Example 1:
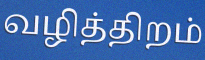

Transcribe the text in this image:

வழித்திறம்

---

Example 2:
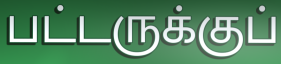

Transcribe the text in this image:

பட்டருக்குப்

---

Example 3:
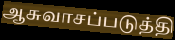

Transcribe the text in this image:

ஆசுவாசப்படுத்தி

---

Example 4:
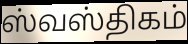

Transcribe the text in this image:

ஸ்வஸ்திகம்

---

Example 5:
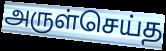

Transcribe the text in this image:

அருள்செய்த